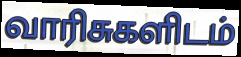
வாரிசுகளிடம்